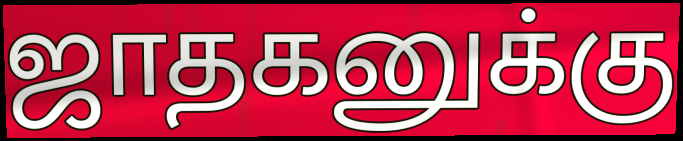
ஜாதகனுக்கு